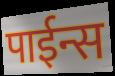
पाईन्स